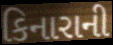
કિનારાની